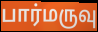
பார்மருவு